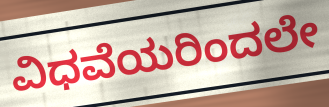
ವಿಧವೆಯರಿಂದಲೇ